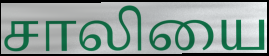
சாலியை